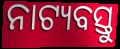
ନାଟ୍ୟବସ୍ତୁ